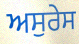
ਅਸੁਰੇਸ